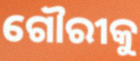
ଗୌରୀକୁ